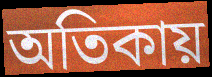
অতিকায়